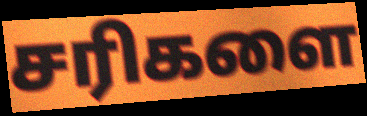
சரிகளை